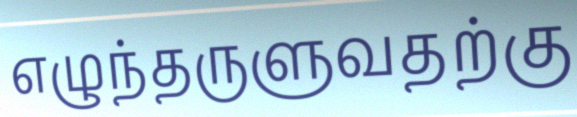
எழுந்தருளுவதற்கு